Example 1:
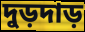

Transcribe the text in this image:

দুড়দাড়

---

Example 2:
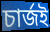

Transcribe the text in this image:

চার্জই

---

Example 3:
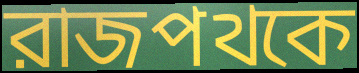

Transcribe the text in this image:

রাজপথকে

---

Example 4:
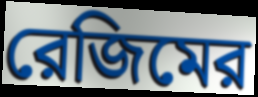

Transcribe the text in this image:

রেজিমের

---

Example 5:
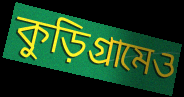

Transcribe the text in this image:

কুড়িগ্রামেও